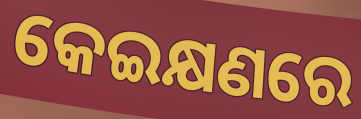
କେଇକ୍ଷଣରେ